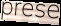
prese